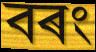
বৰং